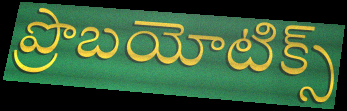
ప్రొబయోటిక్స్